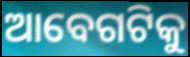
ଆବେଗଟିକୁ